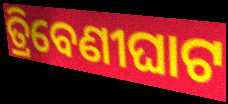
ତ୍ରିବେଣୀଘାଟ